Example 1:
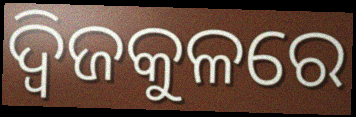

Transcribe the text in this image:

ଦ୍ୱିଜକୁଳରେ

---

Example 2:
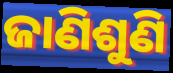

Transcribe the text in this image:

ଜାଣିଶୁଣି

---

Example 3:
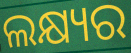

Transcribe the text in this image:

ଲକ୍ଷ୍ୟର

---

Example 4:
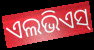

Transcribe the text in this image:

ଏଲଭିଏସ୍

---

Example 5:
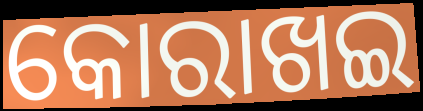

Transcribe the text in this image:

କୋରାଖଇ